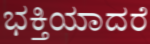
ಭಕ್ತಿಯಾದರೆ